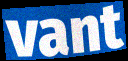
vant